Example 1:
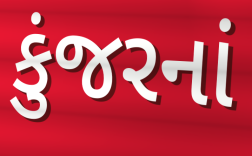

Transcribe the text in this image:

કુંજરનાં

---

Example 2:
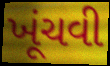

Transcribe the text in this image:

ખૂંચવી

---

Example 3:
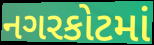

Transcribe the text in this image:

નગરકોટમાં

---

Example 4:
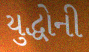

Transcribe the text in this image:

યુદ્ધોની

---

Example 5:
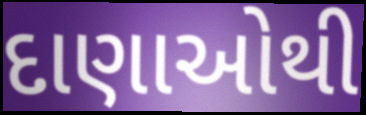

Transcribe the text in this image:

દાણાઓથી